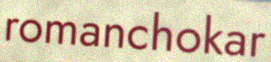
romanchokar